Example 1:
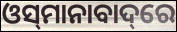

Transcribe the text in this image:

ଓସ୍‌ମାନାବାଦ୍‌ରେ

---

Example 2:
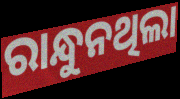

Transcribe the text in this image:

ରାନ୍ଧୁନଥିଲା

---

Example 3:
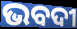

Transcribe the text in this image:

ଭବଦୀ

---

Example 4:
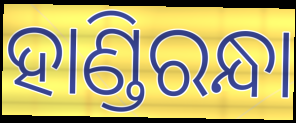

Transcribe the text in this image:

ହାଣ୍ଡିରନ୍ଧା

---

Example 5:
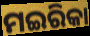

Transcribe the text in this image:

ମଇରିକା